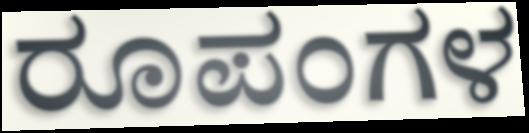
ರೂಪಂಗಳ